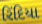
રિંદિયા